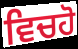
ਵਿਚਹੋ